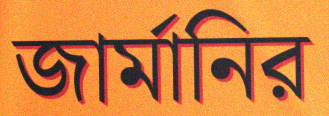
জার্মানির